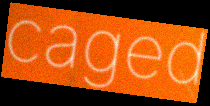
caged